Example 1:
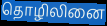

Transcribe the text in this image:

தொழிலினை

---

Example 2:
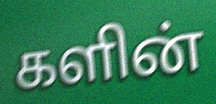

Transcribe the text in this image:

களின்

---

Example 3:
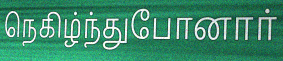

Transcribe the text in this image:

நெகிழ்ந்துபோனார்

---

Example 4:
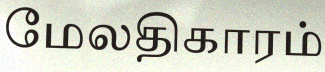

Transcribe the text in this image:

மேலதிகாரம்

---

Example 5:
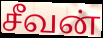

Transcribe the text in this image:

சீவன்